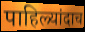
पाहिल्यांदाच